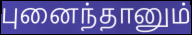
புனைந்தானும்